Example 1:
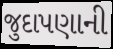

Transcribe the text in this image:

જુદાપણાની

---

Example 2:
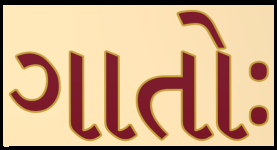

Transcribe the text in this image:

ગાતોઃ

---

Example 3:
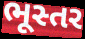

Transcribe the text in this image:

ભૂસ્તર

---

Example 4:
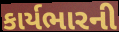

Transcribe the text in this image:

કાર્યભારની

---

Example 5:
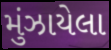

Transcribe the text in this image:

મુંઝાયેલા